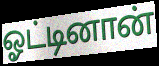
ஓட்டினான்